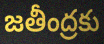
జతీంద్రకు